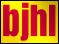
bjhl